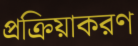
প্রক্রিয়াকরণ